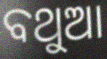
ବଥୁଆ